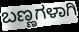
ಬಣ್ಣಗಳಾಗಿ